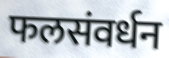
फलसंवर्धन